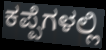
ಕಪ್ಪೆಗಳಲ್ಲಿ